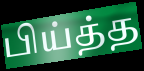
பிய்த்த